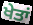
ਖੇਤਾਂ